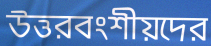
উত্তরবংশীয়দের